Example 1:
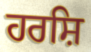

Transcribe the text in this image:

ਹਰਸ਼ਿ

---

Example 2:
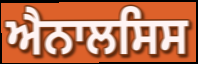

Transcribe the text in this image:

ਐਨਾਲਸਿਸ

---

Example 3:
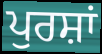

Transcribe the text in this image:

ਪੁਰਸ਼ਾਂ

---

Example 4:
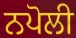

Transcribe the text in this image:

ਨਪੋਲੀ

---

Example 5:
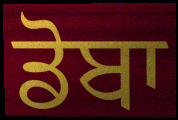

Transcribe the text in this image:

ਡੋਬਾ